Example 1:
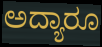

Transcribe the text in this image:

ಅದ್ಯಾರೂ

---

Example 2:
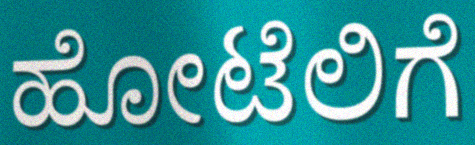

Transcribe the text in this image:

ಹೋಟೆಲಿಗೆ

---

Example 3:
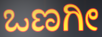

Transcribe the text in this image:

ಒಣಗೀ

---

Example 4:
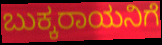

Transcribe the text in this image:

ಬುಕ್ಕರಾಯನಿಗೆ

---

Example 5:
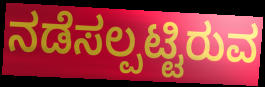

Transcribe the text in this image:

ನಡೆಸಲ್ಪಟ್ಟಿರುವ